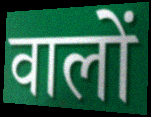
वालों